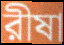
রীষা